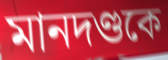
মানদণ্ডকে